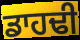
ਡਾਹਢੀ